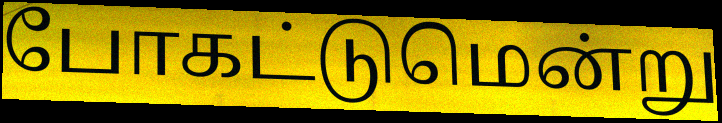
போகட்டுமென்று